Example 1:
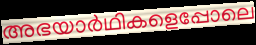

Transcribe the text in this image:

അഭയാർഥികളെപ്പോലെ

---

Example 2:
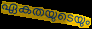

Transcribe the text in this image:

ഏകതയുടെയും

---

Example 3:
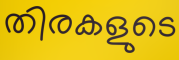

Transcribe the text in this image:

തിരകളുടെ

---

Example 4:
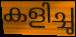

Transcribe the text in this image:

കളിച്ചു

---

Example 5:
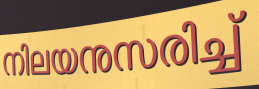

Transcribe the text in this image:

നിലയനുസരിച്ച്